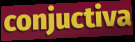
conjuctiva